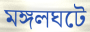
মঙ্গলঘটে